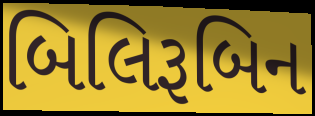
બિલિરૂબિન